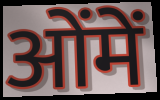
ओंमें